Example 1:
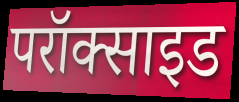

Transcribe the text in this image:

परॉक्साइड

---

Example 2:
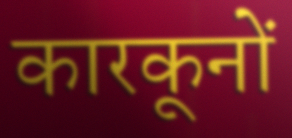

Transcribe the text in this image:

कारकूनों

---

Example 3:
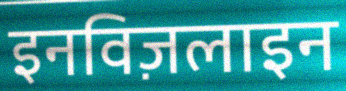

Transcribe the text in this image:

इनविज़लाइन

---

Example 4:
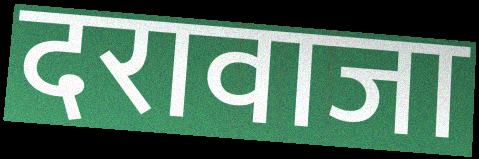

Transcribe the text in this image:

दरावाजा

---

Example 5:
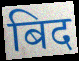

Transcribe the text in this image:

बिद